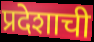
प्रदेशाची